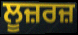
ਲੂਜ਼ਰਜ਼